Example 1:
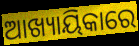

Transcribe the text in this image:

ଆଖ୍ୟାୟିକାରେ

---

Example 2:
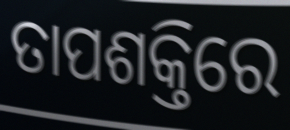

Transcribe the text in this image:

ତାପଶକ୍ତିରେ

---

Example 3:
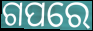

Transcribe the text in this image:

ଗପରେ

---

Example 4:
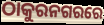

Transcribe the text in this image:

ଠାକୁରନଗରରେ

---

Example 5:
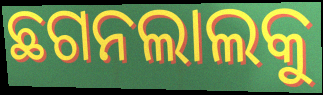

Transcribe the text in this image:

ଛଗନଲାଲକୁ